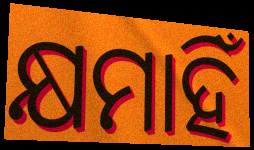
କ୍ଷମାହିଁ